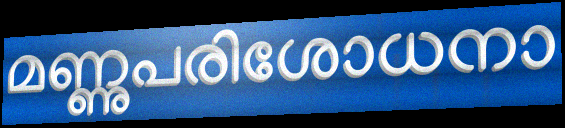
മണ്ണുപരിശോധനാ